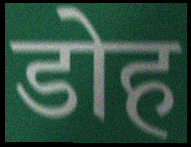
डोह